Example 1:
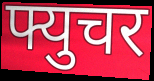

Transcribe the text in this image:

फ्युचर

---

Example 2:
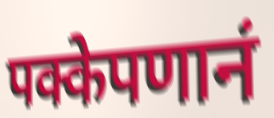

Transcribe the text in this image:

पक्केपणानं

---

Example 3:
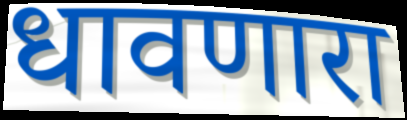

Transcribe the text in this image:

धावणारा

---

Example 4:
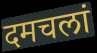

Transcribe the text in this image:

दमचलां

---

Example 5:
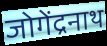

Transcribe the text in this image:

जोगेंद्रनाथ